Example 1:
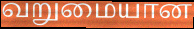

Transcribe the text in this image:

வறுமையான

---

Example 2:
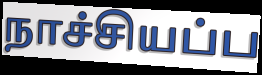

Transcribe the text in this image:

நாச்சியப்ப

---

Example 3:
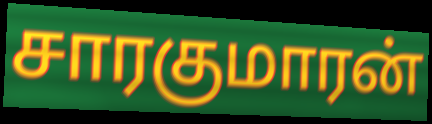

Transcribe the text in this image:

சாரகுமாரன்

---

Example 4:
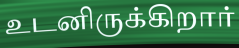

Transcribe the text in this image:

உடனிருக்கிறார்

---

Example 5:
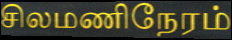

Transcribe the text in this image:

சிலமணிநேரம்